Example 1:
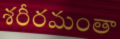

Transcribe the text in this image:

శరీరమంతా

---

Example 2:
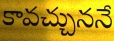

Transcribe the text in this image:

కావచ్చుననే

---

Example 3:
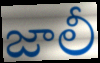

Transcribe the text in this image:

జాలీ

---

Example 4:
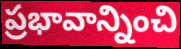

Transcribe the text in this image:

ప్రభావాన్నించి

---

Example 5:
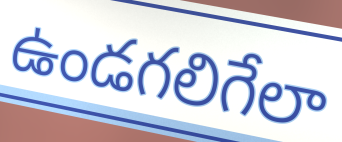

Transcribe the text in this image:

ఉండగలిగేలా